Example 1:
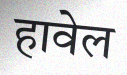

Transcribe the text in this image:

हावेल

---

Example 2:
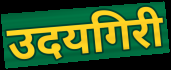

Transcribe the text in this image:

उदयगिरी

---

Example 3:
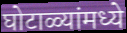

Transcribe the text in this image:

घोटाळ्यांमध्ये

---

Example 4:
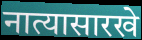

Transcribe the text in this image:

नात्यासारखे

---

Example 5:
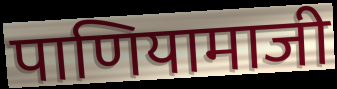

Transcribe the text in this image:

पाणियामाजी